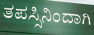
ತಪಸ್ಸಿನಿಂದಾಗಿ